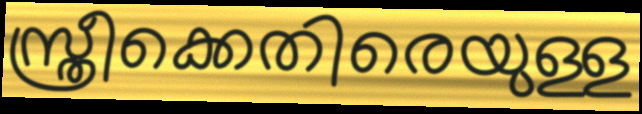
സ്ത്രീക്കെതിരെയുള്ള